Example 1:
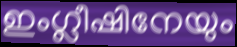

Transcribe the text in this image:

ഇംഗ്ലീഷിനേയും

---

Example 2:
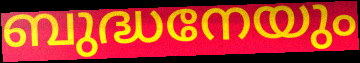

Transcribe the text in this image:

ബുദ്ധനേയും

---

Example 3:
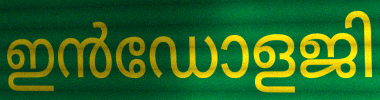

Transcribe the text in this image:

ഇൻഡോളജി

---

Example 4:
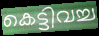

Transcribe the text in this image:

കെട്ടിവച്ച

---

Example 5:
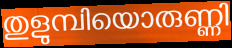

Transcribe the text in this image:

തുളുമ്പിയൊരുണ്ണി